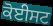
ਕੋਈਸਟ